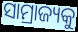
ସାମ୍ରାଜ୍ୟକୁ